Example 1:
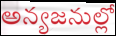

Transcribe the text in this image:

అన్యజనుల్లో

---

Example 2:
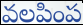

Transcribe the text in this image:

వలపింప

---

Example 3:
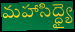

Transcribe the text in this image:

మహాసిద్ధ్యై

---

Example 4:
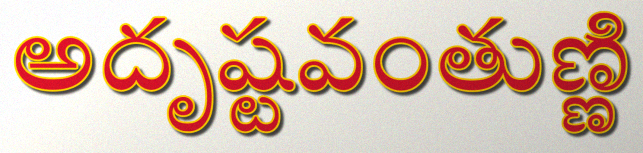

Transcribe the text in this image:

అదృష్టవంతుణ్ణి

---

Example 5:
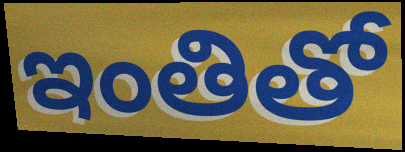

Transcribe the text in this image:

ఇంతితో